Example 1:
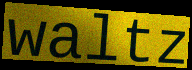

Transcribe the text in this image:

waltz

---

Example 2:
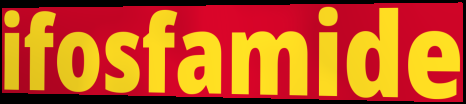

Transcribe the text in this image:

ifosfamide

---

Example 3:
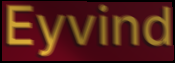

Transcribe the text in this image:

Eyvind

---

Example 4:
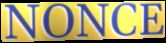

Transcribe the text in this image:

NONCE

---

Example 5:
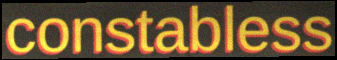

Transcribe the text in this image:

constabless